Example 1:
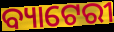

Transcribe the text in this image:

ବ୍ୟାଟେରୀ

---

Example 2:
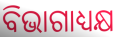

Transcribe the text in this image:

ବିଭାଗାଧ୍ୟକ୍ଷ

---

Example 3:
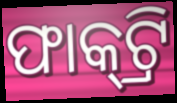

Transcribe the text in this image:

ଫାକ୍‍ଟ୍ରି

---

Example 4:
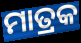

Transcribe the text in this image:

ମାତ୍ରକ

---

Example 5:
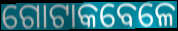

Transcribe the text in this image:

ଗୋଟାକବେଳେ